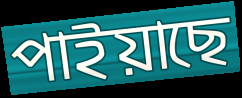
পাইয়াছে